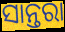
ସାନ୍ତରା